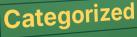
Categorized